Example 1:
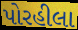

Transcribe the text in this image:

પોરહીલા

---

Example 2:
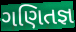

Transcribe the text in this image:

ગણિતજ્ઞ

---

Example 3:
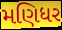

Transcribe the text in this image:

મણિધર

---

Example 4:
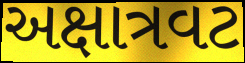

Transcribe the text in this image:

અક્ષાત્રવટ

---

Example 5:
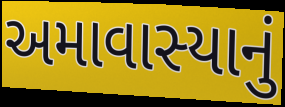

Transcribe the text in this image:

અમાવાસ્યાનું